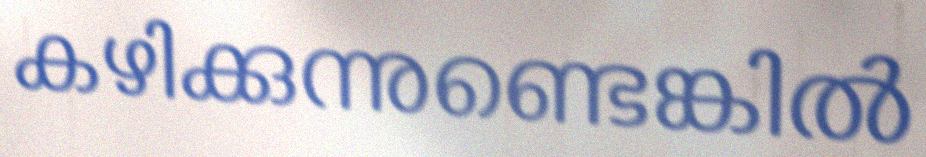
കഴിക്കുന്നുണ്ടെങ്കിൽ